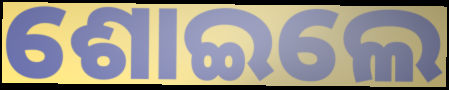
ଶୋଇଲେ